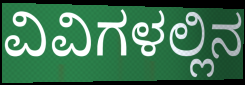
ವಿವಿಗಳಲ್ಲಿನ